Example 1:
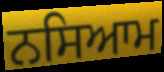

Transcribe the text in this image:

ਨਸਿਆਮ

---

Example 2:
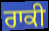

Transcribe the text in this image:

ਰਾਕੀ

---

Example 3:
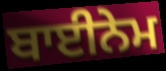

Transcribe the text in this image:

ਬਾਈਨੇਮ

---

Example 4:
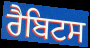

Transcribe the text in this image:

ਰੈਬਿਟਸ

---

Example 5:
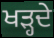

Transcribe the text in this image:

ਖੜ੍ਹਦੇ